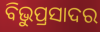
ବିଭୁପ୍ରସାଦର